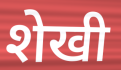
शेखी